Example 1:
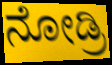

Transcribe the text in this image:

ನೋಡ್ರಿ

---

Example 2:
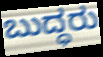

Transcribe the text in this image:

ಬುದ್ಧರು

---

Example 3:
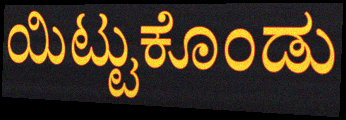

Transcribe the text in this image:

ಯಿಟ್ಟುಕೊಂಡು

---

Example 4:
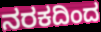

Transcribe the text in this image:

ನರಕದಿಂದ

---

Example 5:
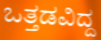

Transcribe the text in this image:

ಒತ್ತಡವಿದ್ದ